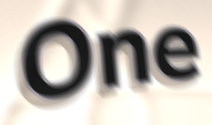
One